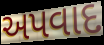
અપવાદ